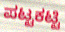
ಪಟ್ಟಕಟ್ಟಿ